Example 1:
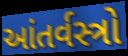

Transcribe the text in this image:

આંતર્વસ્ત્રો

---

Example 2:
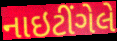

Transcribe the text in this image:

નાઇટીંગેલે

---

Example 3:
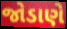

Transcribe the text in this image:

જોડાણે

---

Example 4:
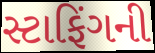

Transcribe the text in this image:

સ્ટાફિંગની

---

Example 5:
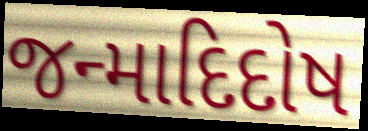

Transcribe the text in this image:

જન્માદિદોષ